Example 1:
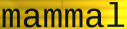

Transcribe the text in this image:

mammal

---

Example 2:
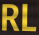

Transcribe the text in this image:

RL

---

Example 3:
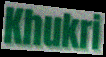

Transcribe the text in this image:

Khukri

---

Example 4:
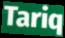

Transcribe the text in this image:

Tariq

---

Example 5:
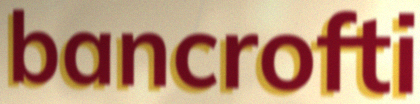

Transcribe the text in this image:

bancrofti